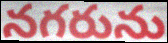
నగరును